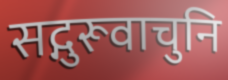
सद्गुरूवाचुनि